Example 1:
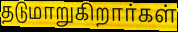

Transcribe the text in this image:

தடுமாறுகிறார்கள்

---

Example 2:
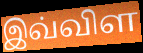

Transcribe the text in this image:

இவ்விள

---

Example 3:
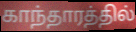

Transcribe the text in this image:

காந்தாரத்தில்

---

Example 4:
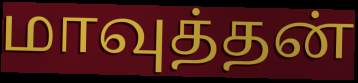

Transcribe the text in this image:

மாவுத்தன்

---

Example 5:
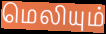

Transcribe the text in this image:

மெலியும்